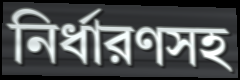
নির্ধারণসহ